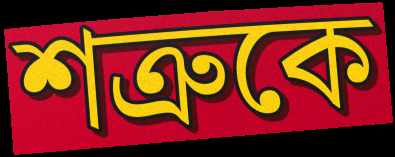
শত্রুকে